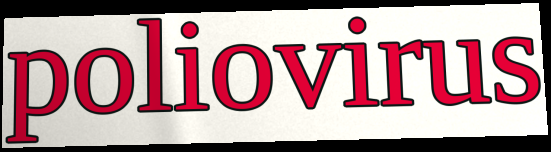
poliovirus